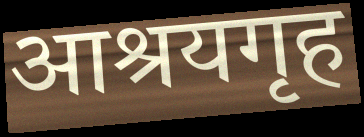
आश्रयगृह